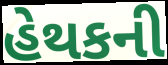
હેથકની